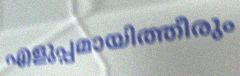
എളുപ്പമായിത്തീരും